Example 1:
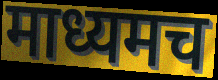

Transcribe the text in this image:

माध्यमच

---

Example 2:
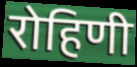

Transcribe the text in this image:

रोहिणी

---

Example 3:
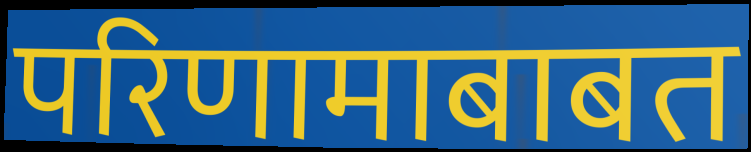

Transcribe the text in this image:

परिणामाबाबत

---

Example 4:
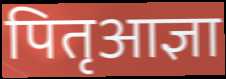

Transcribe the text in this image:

पितृआज्ञा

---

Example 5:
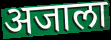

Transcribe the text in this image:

अजाला